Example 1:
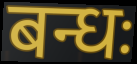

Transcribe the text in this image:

बन्धः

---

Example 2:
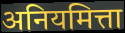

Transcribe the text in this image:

अनियमित्ता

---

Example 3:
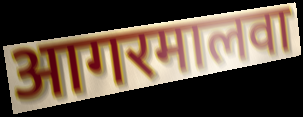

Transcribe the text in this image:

आगरमालवा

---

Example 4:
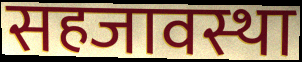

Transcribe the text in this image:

सहजावस्था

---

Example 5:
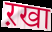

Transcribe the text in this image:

ऱखा